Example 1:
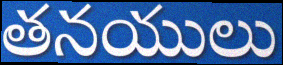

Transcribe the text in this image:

తనయులు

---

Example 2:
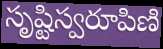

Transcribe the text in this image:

సృష్టిస్వరూపిణి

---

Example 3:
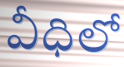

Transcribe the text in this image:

వీధిలో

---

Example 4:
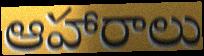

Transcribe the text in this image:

ఆహారాలు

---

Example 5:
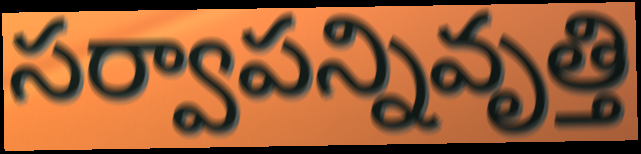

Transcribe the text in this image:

సర్వాపన్నివృత్తి